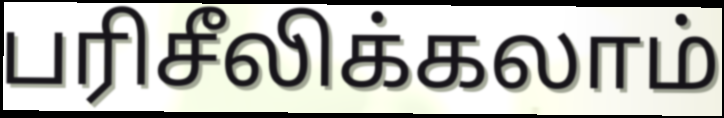
பரிசீலிக்கலாம்